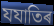
যযাতিৰ